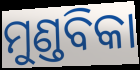
ମୁଣ୍ଡବିକା